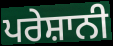
ਪਰੇਸ਼ਾਨੀ